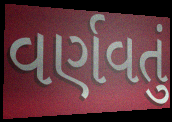
વર્ણવતું